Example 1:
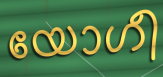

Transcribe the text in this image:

യോഗീ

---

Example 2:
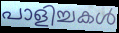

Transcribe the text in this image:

പാളിച്ചകൾ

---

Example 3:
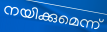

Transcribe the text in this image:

നയിക്കുമെന്ന്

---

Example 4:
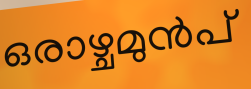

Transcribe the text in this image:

ഒരാഴ്ചമുൻപ്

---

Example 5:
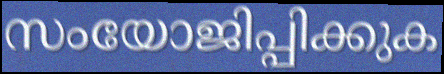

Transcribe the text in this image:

സംയോജിപ്പിക്കുക